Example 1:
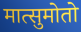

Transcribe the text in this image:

मात्सुमोतो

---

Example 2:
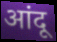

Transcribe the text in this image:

आंदू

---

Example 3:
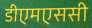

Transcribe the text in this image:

डीएमएससी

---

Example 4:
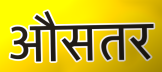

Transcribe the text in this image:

औसतर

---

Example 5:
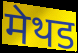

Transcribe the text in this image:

मेथड